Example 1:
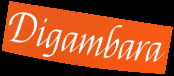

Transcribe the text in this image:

Digambara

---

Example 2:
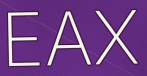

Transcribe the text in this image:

EAX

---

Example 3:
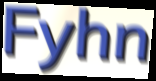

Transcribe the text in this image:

Fyhn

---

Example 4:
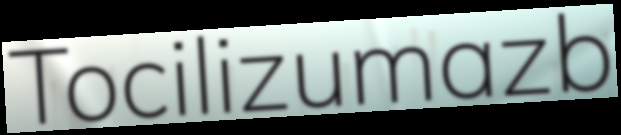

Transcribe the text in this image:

Tocilizumazb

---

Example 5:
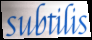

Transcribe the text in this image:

subtilis